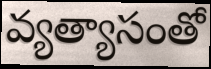
వ్యత్యాసంతో